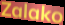
Zalako